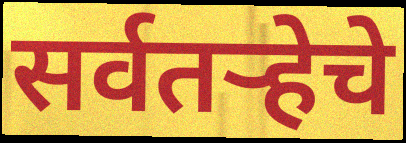
सर्वतऱ्हेचे